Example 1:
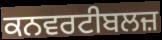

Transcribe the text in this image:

ਕਨਵਰਟੀਬਲਜ਼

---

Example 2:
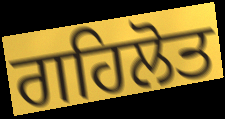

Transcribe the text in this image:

ਗਹਿਲੋਤ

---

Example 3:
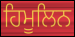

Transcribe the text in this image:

ਹਿਮੂਲਿਨ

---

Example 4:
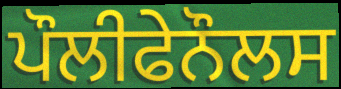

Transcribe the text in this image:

ਪੌਲੀਫੇਨੌਲਸ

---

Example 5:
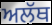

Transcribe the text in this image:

ਅਲੱਥ